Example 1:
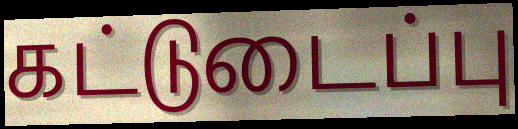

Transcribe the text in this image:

கட்டுடைப்பு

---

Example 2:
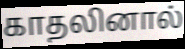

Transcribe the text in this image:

காதலினால்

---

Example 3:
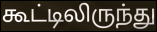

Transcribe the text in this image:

கூட்டிலிருந்து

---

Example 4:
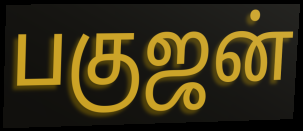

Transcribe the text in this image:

பகுஜன்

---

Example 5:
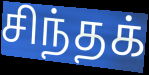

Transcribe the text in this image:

சிந்தக்